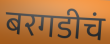
बरगडीचं